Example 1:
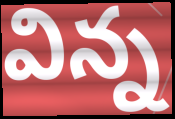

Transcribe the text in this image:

విన్న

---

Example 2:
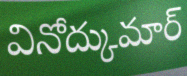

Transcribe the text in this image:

వినోద్కుమార్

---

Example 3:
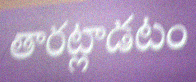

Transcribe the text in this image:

తారట్లాడటం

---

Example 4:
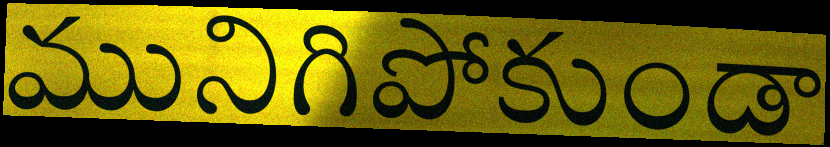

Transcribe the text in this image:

మునిగిపోకుండా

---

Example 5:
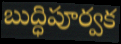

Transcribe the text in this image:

బుద్ధిపూర్వక